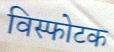
विस्फोटक